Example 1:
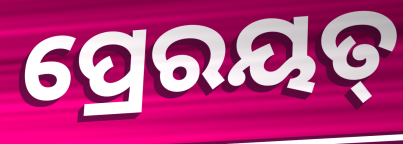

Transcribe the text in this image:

ପ୍ରେରୟତ୍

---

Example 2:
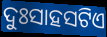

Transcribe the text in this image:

ଦୁଃସାହସଟିଏ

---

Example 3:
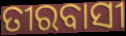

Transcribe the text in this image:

ତୀରବାସୀ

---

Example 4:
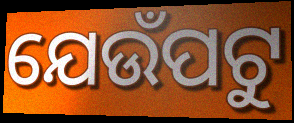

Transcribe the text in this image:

ଯେଉଁପଟୁ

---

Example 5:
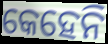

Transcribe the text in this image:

କେହେନି